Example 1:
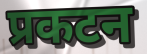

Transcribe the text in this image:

प्रकटन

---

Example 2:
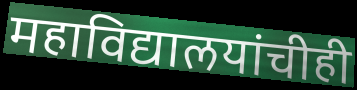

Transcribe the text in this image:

महाविद्यालयांचीही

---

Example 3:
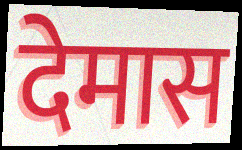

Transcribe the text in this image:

देमास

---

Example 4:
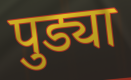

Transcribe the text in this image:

पुड्या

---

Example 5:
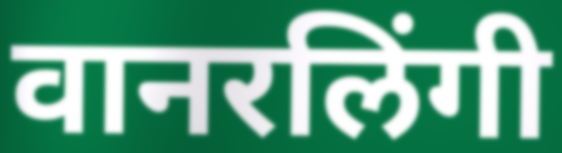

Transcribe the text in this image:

वानरलिंगी